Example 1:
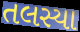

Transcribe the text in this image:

તલસ્યા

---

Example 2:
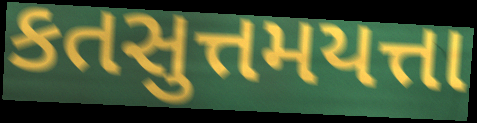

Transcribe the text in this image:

કતસુત્તમયત્તા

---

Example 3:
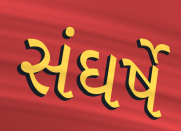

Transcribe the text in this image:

સંઘર્ષે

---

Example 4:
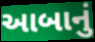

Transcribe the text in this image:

આબાનું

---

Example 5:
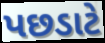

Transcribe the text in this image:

પછડાટે